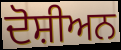
ਦੋਸ਼ੀਅਨ